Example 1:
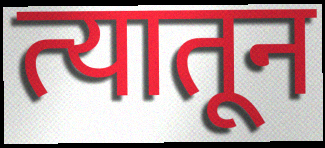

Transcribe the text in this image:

त्‍यातून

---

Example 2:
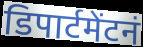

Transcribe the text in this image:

डिपार्टमेंटनं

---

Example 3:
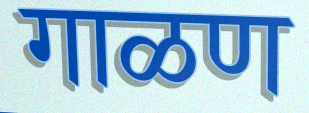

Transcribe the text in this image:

गाळण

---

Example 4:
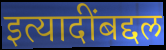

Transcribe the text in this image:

इत्यादींबद्दल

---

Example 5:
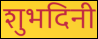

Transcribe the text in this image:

शुभदिनी